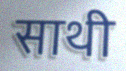
साथी